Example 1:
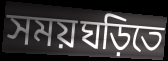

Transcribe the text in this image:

সময়ঘড়িতে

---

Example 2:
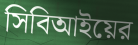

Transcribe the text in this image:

সিবিআইয়ের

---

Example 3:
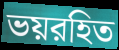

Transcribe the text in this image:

ভয়রহিত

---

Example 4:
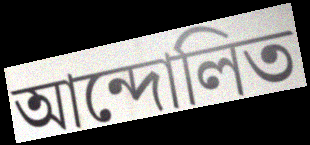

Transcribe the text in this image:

আন্দোলিত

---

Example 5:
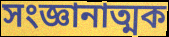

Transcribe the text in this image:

সংজ্ঞানাত্মক